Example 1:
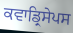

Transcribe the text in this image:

ਕਵਾਡ੍ਰਿਸੇਪਸ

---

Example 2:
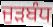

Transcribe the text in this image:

ਜੁੜਬੰਧ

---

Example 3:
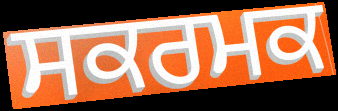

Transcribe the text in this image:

ਸਕਰਮਕ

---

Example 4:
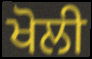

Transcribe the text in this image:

ਖੋਲੀ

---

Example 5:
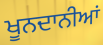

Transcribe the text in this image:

ਖੂਨਦਾਨੀਆਂ